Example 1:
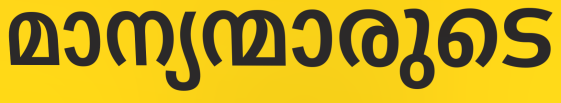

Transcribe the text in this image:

മാന്യന്മാരുടെ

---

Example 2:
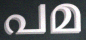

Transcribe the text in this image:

പമ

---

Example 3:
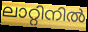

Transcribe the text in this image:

ലാറ്റിനിൽ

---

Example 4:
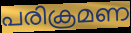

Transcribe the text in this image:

പരിക്രമണ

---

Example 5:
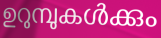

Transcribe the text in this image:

ഉറുമ്പുകൾക്കും